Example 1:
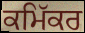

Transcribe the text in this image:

ਕਮਿੱਕਰ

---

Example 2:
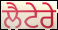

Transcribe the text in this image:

ਲੈਟੇਰੇ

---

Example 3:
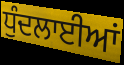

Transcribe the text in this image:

ਧੁੰਦਲਾਈਆਂ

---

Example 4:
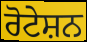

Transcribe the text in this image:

ਰੋਟੇਸ਼ਨ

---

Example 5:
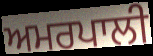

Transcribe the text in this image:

ਅਮਰਪਾਲੀ